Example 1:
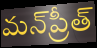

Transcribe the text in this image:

మన్‌ప్రీత్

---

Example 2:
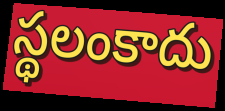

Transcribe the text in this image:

స్థలంకాదు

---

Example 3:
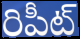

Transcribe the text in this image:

రిపీట్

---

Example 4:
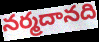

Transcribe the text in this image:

నర్మదానది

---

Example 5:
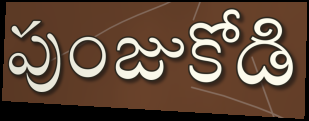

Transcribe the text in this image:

పుంజుకోడి